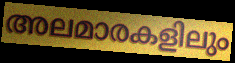
അലമാരകളിലും